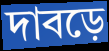
দাবড়ে